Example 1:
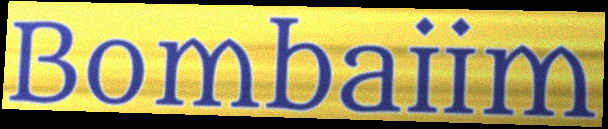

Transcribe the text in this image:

Bombaiim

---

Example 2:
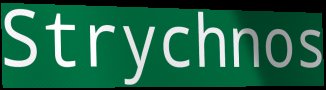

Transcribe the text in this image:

Strychnos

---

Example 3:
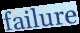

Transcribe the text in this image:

failure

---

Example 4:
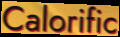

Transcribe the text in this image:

Calorific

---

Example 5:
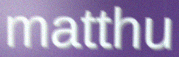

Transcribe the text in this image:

matthu